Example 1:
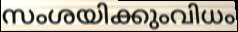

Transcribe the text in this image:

സംശയിക്കുംവിധം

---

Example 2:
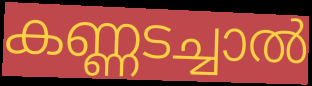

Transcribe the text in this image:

കണ്ണടച്ചാൽ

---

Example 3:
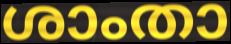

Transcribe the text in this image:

ശാംതാ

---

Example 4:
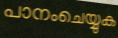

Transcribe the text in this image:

പാനംചെയ്യുക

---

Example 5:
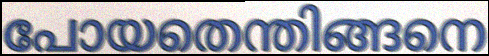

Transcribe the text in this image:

പോയതെന്തിങ്ങനെ